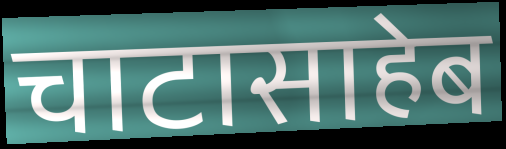
चाटासाहेब